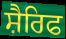
ਸ਼ੈਰਿਫ